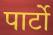
पार्टो